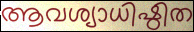
ആവശ്യാധിഷ്ഠിത